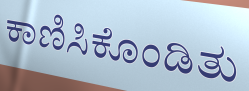
ಕಾಣಿಸಿಕೊಂಡಿತು